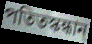
পতিতস্কন্ধান্